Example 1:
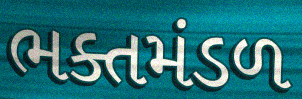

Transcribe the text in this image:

ભક્તમંડળ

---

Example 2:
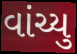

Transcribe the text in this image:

વાંચ્યુ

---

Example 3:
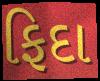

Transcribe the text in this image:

ફિદા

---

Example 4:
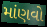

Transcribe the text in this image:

માંણવો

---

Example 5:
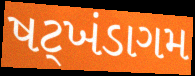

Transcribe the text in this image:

ષટ્ખંડાગમ